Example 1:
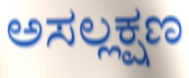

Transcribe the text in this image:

ಅಸಲ್ಲಕ್ಷಣ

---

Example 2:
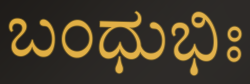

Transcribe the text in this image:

ಬಂಧುಭಿಃ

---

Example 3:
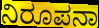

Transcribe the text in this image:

ನಿರೂಪನಾ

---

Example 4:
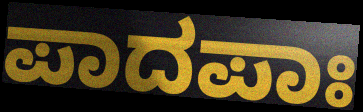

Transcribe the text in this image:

ಪಾದಪಾಃ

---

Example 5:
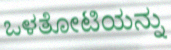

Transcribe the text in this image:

ಒಳತೋಟಿಯನ್ನು